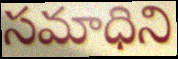
సమాధిని